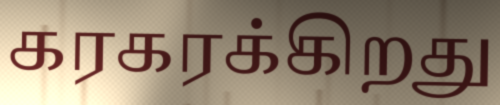
கரகரக்கிறது